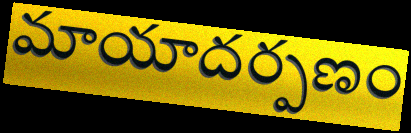
మాయాదర్పణం